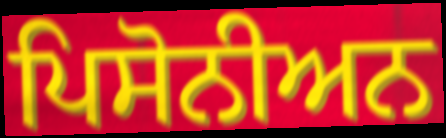
ਪਿਸੋਨੀਅਨ